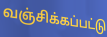
வஞ்சிக்கப்பட்டு